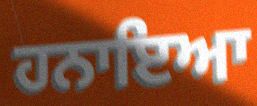
ਹਨਾਇਆ